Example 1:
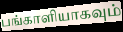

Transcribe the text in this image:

பங்காளியாகவும்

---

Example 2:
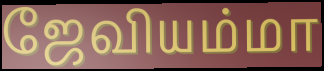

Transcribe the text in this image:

ஜேவியம்மா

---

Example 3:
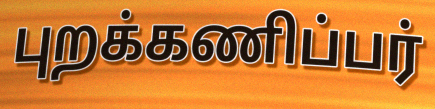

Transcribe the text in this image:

புறக்கணிப்பர்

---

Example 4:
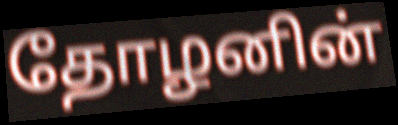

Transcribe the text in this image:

தோழனின்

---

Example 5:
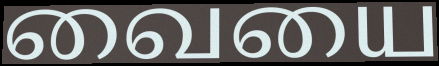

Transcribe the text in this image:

வையை